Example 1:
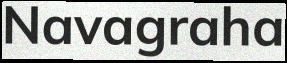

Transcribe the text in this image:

Navagraha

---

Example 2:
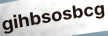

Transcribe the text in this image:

gihbsosbcg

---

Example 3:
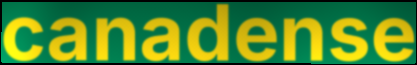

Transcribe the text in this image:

canadense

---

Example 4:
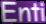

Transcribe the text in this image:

Enti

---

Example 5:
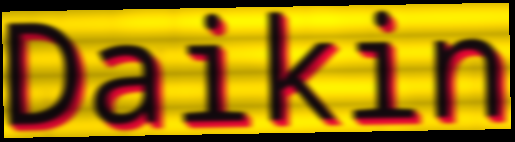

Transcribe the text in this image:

Daikin